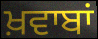
ਖ਼ਵਾਬਾਂ